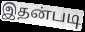
இதன்படி